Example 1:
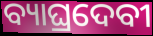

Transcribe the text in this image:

ବ୍ୟାଘ୍ରଦେବୀ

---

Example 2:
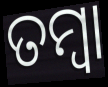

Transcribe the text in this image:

ତମ୍ୱା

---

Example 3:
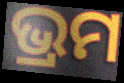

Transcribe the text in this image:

ଭ୍ରମ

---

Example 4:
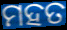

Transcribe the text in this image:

ମହତ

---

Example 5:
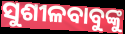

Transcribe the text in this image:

ସୁଶୀଳବାବୁଙ୍କୁ